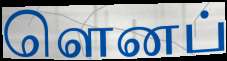
ளெனப்